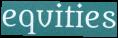
equities